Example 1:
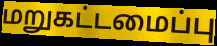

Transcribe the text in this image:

மறுகட்டமைப்பு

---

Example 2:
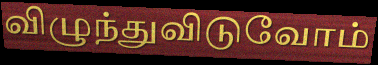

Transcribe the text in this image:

விழுந்துவிடுவோம்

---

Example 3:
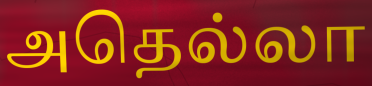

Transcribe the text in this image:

அதெல்லா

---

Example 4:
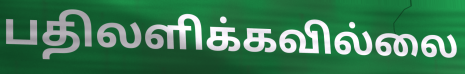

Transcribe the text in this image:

பதிலளிக்கவில்லை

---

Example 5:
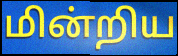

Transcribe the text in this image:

மின்றிய